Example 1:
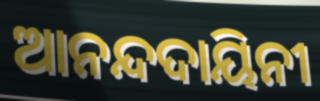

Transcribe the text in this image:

ଆନନ୍ଦଦାୟିନୀ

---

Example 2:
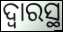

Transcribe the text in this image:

ଦ୍ବାରସ୍ଥ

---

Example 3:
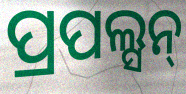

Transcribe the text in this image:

ପ୍ରପଲ୍ସନ୍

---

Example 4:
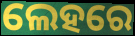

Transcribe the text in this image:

ଲେହରେ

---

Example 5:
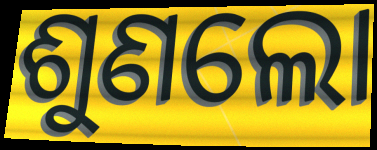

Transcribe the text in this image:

ଶୁଣଲୋ